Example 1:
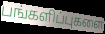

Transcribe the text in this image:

பங்களிப்புகளை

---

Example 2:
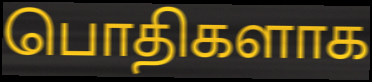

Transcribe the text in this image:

பொதிகளாக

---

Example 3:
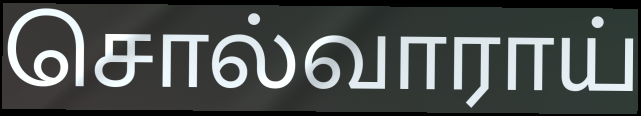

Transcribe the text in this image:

சொல்வாராய்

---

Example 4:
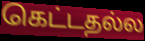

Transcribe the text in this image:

கெட்டதல்ல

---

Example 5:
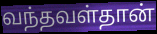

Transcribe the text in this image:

வந்தவள்தான்